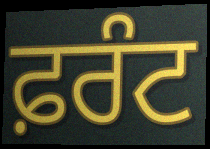
ਫ਼ਰੰਟ